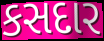
કસદાર